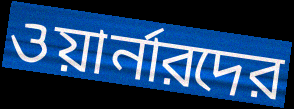
ওয়ার্নারদের